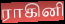
ராகினி